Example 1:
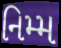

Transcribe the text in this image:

નિમ્મ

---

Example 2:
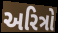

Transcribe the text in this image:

અરિત્રો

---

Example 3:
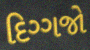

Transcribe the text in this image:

દિગ્ગજો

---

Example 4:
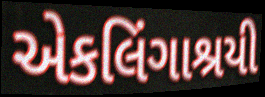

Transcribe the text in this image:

એકલિંગાશ્રયી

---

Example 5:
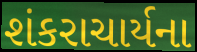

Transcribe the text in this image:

શંકરાચાર્યના